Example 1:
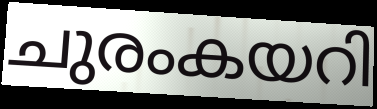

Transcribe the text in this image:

ചുരംകയറി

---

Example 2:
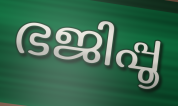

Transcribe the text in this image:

ഭജിപ്പൂ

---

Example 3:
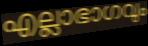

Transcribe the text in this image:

എല്ലാഭാഗവും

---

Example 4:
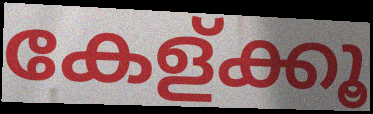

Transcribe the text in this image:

കേള്ക്കൂ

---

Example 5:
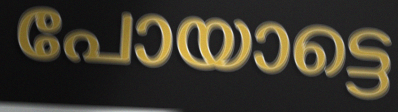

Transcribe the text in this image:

പോയാട്ടെ